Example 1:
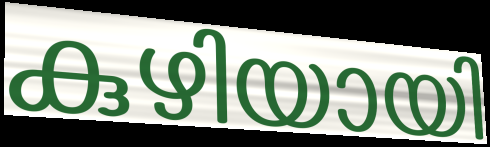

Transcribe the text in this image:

കുഴിയായി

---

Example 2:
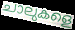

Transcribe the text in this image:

ചാലുകളെ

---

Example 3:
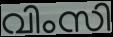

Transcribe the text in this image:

വിംസി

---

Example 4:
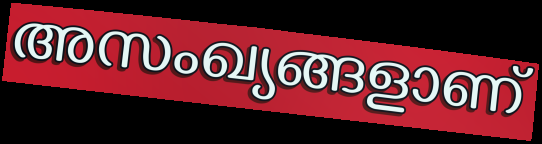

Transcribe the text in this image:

അസംഖ്യങ്ങളാണ്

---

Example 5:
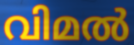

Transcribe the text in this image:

വിമൽ